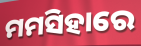
ମମସିହାରେ